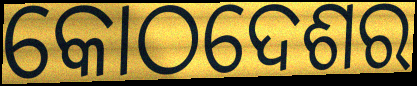
କୋଠଦେଶର